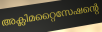
അക്ലിമറ്റൈസേഷന്റെ